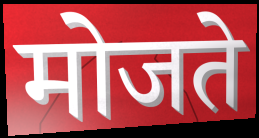
मोजते